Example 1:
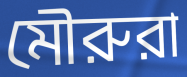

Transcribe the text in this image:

মৌরুরা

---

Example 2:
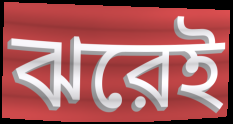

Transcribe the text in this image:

ঝরেই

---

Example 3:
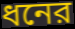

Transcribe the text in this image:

ধনের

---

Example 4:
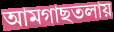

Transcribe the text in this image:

আমগাছতলায়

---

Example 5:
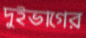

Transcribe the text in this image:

দুইভাগের